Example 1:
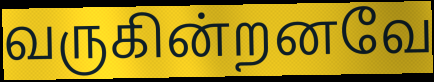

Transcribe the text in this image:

வருகின்றனவே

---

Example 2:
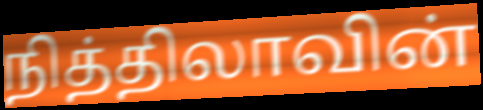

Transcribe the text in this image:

நித்திலாவின்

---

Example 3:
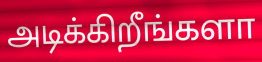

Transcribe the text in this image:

அடிக்கிறீங்களா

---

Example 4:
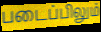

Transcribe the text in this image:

படைப்பிலும்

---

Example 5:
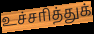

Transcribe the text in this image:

உச்சரித்துக்